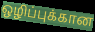
ஒழிப்புக்கான